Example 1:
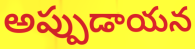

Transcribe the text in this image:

అప్పుడాయన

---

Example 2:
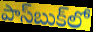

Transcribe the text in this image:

పాస్‌బుక్‌లో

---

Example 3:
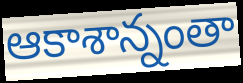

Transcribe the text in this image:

ఆకాశాన్నంతా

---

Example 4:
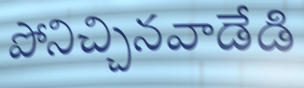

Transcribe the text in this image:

పోనిచ్చినవాడేడి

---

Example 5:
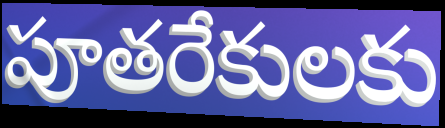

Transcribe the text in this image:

పూతరేకులకు